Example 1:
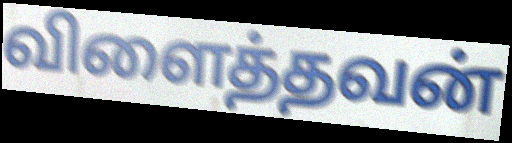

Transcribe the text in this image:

விளைத்தவன்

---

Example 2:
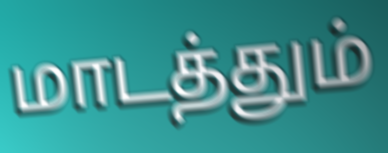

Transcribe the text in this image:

மாடத்தும்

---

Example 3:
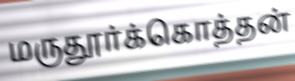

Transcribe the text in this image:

மருதூர்க்கொத்தன்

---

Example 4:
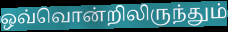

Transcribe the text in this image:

ஒவ்வொன்றிலிருந்தும்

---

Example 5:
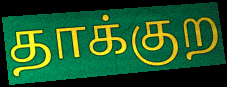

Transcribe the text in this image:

தாக்குற